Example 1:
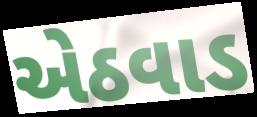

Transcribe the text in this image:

એઠવાડ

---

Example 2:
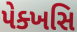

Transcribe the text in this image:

પેક્ખસિ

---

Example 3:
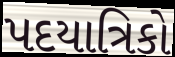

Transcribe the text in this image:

પદયાત્રિકો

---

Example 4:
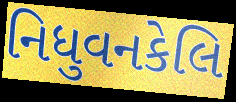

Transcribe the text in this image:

નિધુવનકેલિ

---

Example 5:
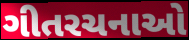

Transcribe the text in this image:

ગીતરચનાઓ